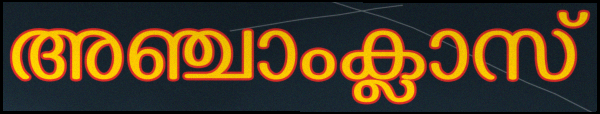
അഞ്ചാംക്ലാസ്